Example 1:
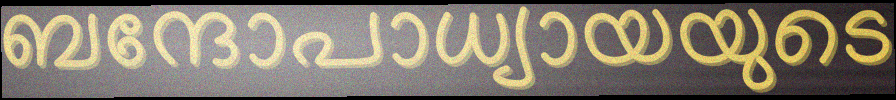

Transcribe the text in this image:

ബന്ദോപാധ്യായയുടെ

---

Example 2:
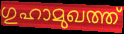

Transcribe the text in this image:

ഗുഹാമുഖത്ത്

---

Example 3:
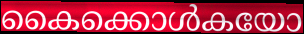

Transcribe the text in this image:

കൈക്കൊൾകയോ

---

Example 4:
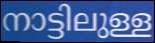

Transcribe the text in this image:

നാട്ടിലുള്ള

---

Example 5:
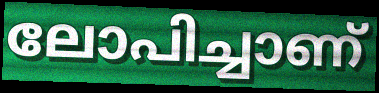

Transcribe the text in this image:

ലോപിച്ചാണ്